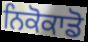
ਨਿਕੋਕਾਡੋ